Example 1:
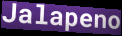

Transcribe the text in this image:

Jalapeno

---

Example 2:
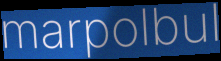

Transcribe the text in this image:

marpolbul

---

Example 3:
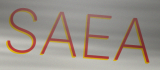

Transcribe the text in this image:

SAEA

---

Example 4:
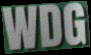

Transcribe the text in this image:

WDG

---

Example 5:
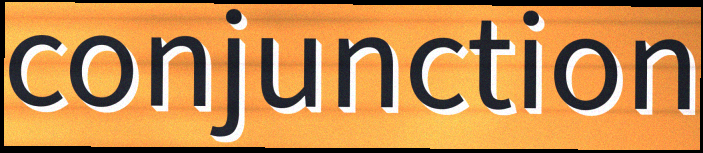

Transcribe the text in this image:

conjunction